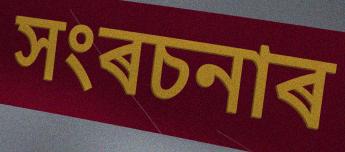
সংৰচনাৰ